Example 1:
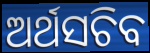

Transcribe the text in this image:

ଅର୍ଥସଚିବ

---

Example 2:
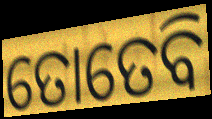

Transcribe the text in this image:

ତୋତେବି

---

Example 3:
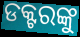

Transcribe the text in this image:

ଡକ୍ଟରଙ୍କୁ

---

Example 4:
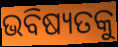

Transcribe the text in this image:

ଭବିଷ୍ୟତକୁ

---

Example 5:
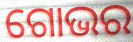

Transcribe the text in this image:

ଗୋଭର